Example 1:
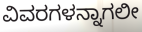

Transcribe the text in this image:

ವಿವರಗಳನ್ನಾಗಲೀ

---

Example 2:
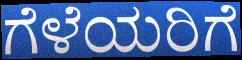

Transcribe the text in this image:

ಗೆಳೆಯರಿಗೆ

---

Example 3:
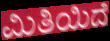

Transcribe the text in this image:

ಮಿತಿಯಿದೆ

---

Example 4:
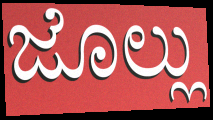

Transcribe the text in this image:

ಜೊಲ್ಲು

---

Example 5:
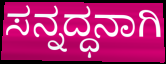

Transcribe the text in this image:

ಸನ್ನದ್ಧನಾಗಿ